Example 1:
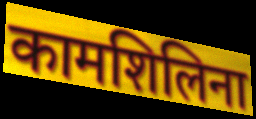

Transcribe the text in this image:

कामशिलिना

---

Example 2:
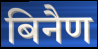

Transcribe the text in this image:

बिनैण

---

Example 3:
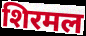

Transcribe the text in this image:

शिरमल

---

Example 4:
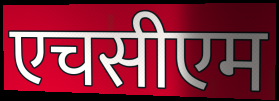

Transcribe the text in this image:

एचसीएम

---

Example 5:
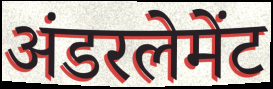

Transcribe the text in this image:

अंडरलेमेंट